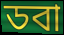
ডবা